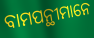
ବାମପନ୍ଥୀମାନେ